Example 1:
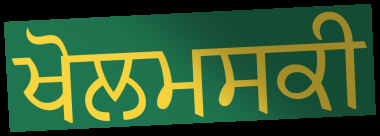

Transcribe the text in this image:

ਖੋਲਮਸਕੀ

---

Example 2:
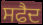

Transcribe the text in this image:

ਸਫੈਦ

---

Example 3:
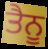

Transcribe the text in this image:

ਤੈਨੂ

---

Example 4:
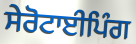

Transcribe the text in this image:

ਸੇਰੋਟਾਈਪਿੰਗ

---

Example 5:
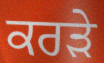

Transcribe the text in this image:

ਕਰੜੇ